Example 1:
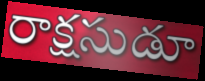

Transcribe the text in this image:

రాక్షసుడూ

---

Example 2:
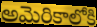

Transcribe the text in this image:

అమెరికాలోకి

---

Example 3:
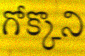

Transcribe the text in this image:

గోక్కొని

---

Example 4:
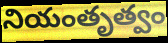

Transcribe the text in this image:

నియంతృత్వం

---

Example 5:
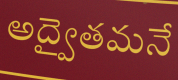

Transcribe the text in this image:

అద్వైతమనే